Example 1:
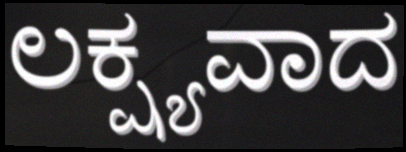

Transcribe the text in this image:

ಲಕ್ಷ್ಯವಾದ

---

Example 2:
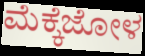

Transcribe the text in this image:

ಮೆಕ್ಕೆಜೋಳ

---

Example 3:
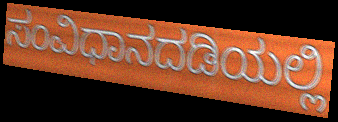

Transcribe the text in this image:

ಸಂವಿಧಾನದಡಿಯಲ್ಲಿ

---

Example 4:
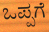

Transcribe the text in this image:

ಒಪ್ಪಗೆ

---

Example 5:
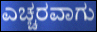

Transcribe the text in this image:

ಎಚ್ಚರವಾಗು